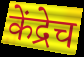
केंद्रेच